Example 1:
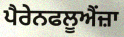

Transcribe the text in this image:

ਪੈਰੇਨਫਲੂਐਂਜ਼ਾ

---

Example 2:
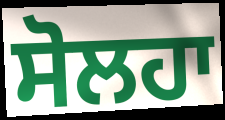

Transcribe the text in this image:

ਸੋਲਹਾ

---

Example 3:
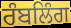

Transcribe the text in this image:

ਰੰਬਲਿੰਗ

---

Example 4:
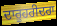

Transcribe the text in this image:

ਦਾਰੂਹਰੀਦਰਾ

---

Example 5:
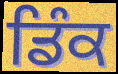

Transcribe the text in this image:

ਡਿੰਕ